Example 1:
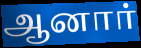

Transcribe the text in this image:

ஆனார்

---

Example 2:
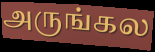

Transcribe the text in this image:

அருங்கல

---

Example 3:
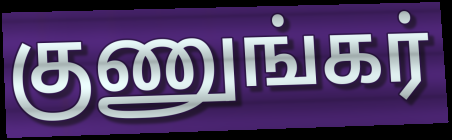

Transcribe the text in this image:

குணுங்கர்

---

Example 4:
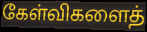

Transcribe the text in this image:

கேள்விகளைத்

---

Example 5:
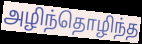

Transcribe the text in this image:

அழிந்தொழிந்த